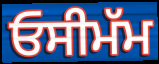
ਓਸੀਮੱਮ